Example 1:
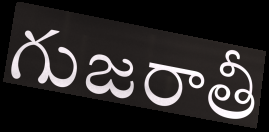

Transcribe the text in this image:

గుజరాతీ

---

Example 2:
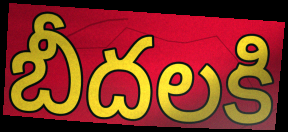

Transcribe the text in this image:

బీదలకి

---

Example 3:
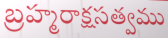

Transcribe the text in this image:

బ్రహ్మరాక్షసత్వము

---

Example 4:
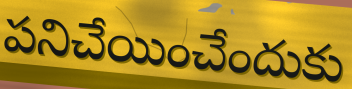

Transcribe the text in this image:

పనిచేయించేందుకు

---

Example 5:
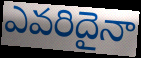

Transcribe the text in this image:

ఎవరిదైనా